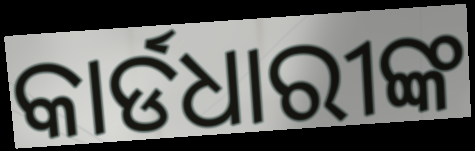
କାର୍ଡଧାରୀଙ୍କ